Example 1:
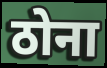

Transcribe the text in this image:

ठोना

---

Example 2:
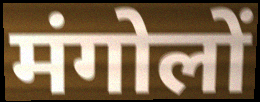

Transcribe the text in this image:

मंगोलों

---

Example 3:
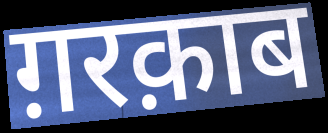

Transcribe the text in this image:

ग़रक़ाब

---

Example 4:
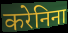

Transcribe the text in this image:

करेनिना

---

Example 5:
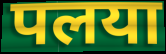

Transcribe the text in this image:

पलया